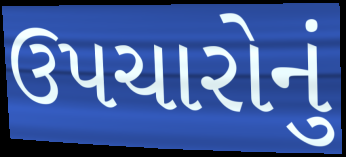
ઉપચારોનું